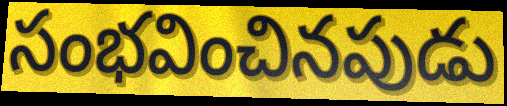
సంభవించినపుడు